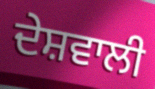
ਦੇਸ਼ਵਾਲੀ